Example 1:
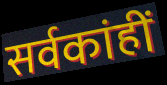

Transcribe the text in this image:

सर्वकांहीं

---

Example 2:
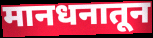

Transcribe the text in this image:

मानधनातून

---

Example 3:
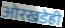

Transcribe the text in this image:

ओरखडेही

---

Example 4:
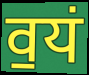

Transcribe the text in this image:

व॒यं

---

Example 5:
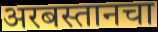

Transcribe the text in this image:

अरबस्तानचा